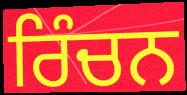
ਰਿੰਚਨ